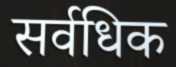
सर्वधिक